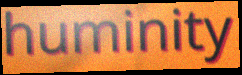
huminity